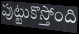
పుట్టుకొస్తోంది